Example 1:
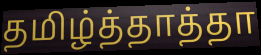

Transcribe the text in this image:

தமிழ்த்தாத்தா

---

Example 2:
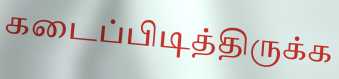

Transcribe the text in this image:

கடைப்பிடித்திருக்க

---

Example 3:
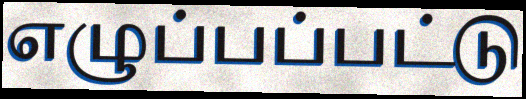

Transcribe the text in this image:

எழுப்பப்பட்டு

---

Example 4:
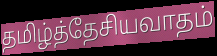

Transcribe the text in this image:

தமிழ்த்தேசியவாதம்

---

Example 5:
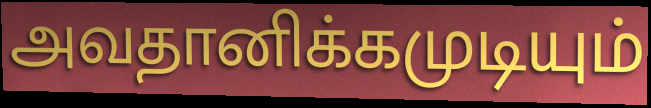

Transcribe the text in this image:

அவதானிக்கமுடியும்